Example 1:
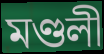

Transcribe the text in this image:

মণ্ডলী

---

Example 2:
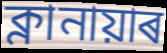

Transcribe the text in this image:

ক্নানায়াৰ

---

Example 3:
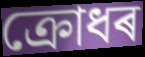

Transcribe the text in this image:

ক্ৰোধৰ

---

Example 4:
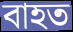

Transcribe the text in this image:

বাহত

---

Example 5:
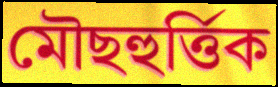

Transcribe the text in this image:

মৌছহুৰ্ত্তিক